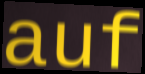
auf